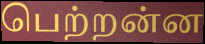
பெற்றன்ன